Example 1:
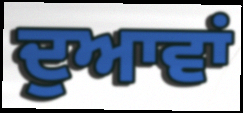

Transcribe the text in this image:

ਦੁਆਵਾਂ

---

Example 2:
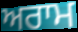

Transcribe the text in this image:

ਅਰਾਮ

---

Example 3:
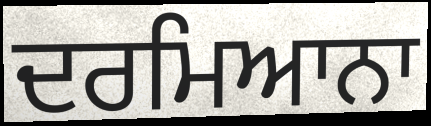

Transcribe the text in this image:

ਦਰਮਿਆਨਾ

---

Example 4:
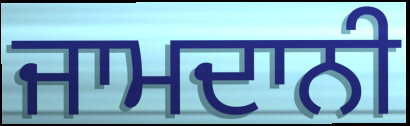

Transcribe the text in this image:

ਜਾਮਦਾਨੀ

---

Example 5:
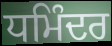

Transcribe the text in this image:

ਧਮਿੰਦਰ